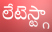
లేటెస్ట్గా